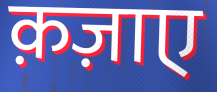
क़ज़ाए